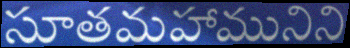
సూతమహామునిని